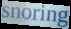
snoring